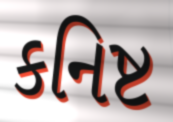
કનિષ્ટ